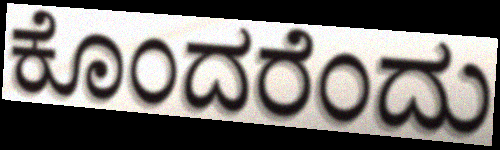
ಕೊಂದರೆಂದು